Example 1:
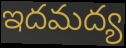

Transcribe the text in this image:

ఇదమద్య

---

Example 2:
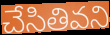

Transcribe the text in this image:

చేసితివని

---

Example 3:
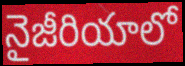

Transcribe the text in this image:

నైజీరియాలో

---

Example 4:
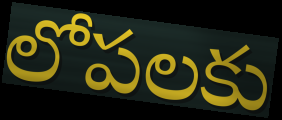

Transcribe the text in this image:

లోపలకు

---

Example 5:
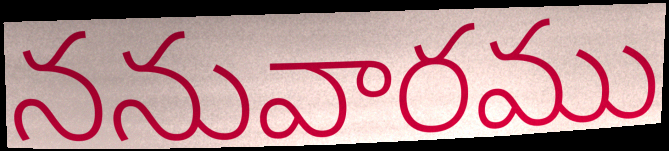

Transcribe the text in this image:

ననువారము